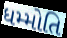
ધમ્મોતિ